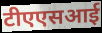
टीएएसआई